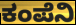
ಕಂಪೆನಿ